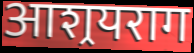
आश्रयराग